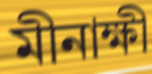
মীনাক্ষী